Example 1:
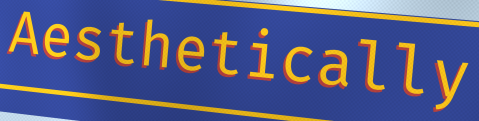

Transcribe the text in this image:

Aesthetically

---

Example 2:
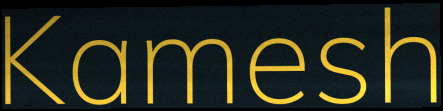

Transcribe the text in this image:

Kamesh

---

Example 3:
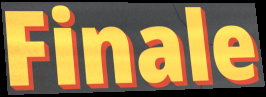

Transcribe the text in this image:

Finale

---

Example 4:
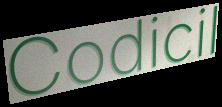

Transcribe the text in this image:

Codicil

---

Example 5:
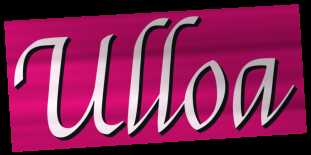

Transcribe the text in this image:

Ulloa